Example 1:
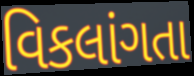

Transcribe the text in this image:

વિકલાંગતા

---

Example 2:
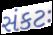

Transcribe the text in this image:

સંકટઃ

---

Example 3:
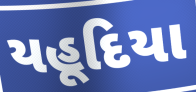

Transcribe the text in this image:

યહૂદિયા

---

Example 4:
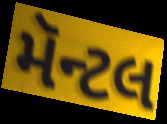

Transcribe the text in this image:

મૅન્ટલ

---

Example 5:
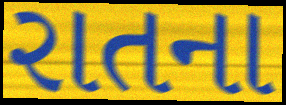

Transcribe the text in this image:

રાતના